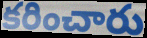
కరించారు